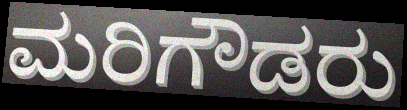
ಮರಿಗೌಡರು